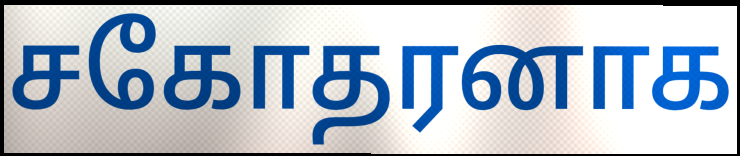
சகோதரனாக